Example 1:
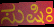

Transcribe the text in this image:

ಸುಷಿಃ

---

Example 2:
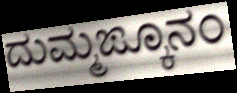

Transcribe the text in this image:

ದುಮ್ಮಙ್ಕೂನಂ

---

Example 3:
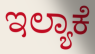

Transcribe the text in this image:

ಇಲ್ಯಾಕೆ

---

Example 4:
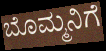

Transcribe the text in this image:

ಬೊಮ್ಮನಿಗೆ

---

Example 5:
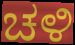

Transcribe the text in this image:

ಚಳಿ